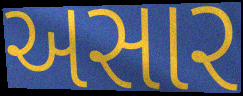
અસાર